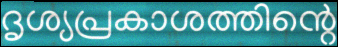
ദൃശ്യപ്രകാശത്തിന്റെ